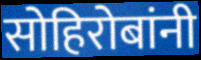
सोहिरोबांनी